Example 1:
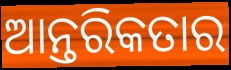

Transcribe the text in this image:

ଆନ୍ତରିକତାର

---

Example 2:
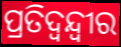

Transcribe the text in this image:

ପ୍ରତିଦ୍ବନ୍ଦ୍ବୀର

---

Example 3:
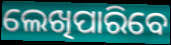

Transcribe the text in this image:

ଲେଖିପାରିବେ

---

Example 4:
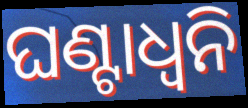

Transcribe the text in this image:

ଘଣ୍ଟାଧ୍ୱନି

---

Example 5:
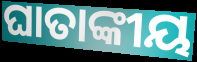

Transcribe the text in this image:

ଘାତାଙ୍କୀୟ